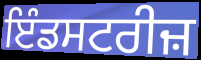
ਇੰਡਸਟਰੀਜ਼